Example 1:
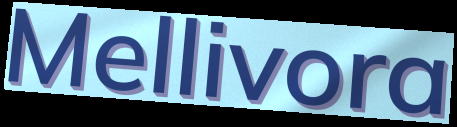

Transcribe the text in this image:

Mellivora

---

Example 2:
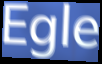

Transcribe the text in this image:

Egle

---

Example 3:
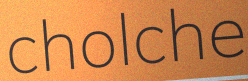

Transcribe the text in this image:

cholche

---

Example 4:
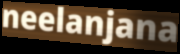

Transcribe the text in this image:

neelanjana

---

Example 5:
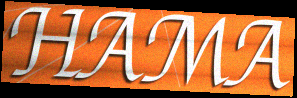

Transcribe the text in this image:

HAMA